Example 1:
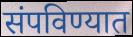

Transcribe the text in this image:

संपविण्यात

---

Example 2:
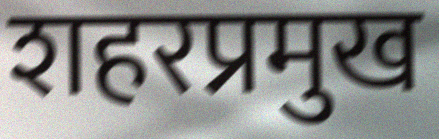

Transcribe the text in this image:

शहरप्रमुख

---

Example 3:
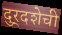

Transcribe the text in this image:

दुर्दशेची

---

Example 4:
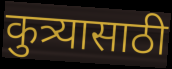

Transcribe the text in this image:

कुत्र्यासाठी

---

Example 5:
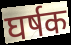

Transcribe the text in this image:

घर्षक